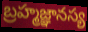
బ్రహ్మజ్ఞానస్య